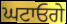
ਘਟਾਓਗੇ